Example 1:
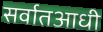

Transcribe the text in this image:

सर्वातआधी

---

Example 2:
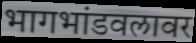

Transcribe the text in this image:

भागभांडवलावर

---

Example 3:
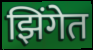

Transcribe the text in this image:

झिंगेत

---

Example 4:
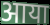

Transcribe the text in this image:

आया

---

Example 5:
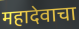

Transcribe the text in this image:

महादेवाचा